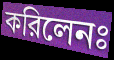
করিলেনঃ